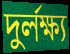
দুর্লক্ষ্য